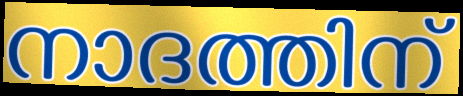
നാദത്തിന്